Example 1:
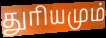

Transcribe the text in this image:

துரியமும்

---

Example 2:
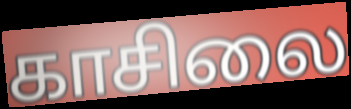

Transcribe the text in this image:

காசிலை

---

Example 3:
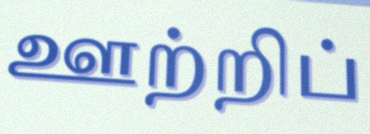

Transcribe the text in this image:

ஊற்றிப்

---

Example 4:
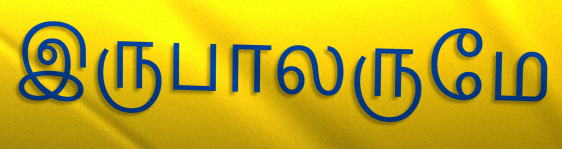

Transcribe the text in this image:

இருபாலருமே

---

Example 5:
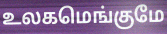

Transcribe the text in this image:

உலகமெங்குமே